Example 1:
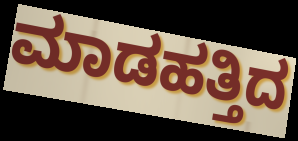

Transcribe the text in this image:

ಮಾಡಹತ್ತಿದ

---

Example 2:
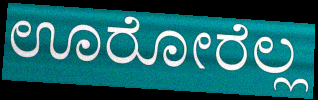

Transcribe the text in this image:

ಊರೋರೆಲ್ಲ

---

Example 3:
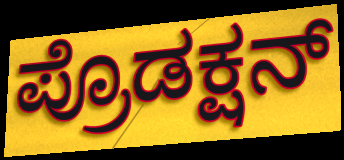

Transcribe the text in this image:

ಪ್ರೊಡಕ್ಷನ್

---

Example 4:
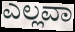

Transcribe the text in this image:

ಎಲ್ಲವಾ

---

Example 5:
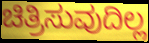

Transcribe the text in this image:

ಚಿತ್ರಿಸುವುದಿಲ್ಲ